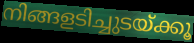
നിങ്ങളടിച്ചുടയ്ക്കൂ